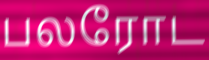
பலரோட